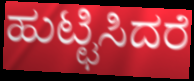
ಹುಟ್ಟಿಸಿದರೆ